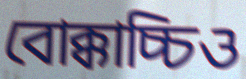
বোক্কাচ্চিও